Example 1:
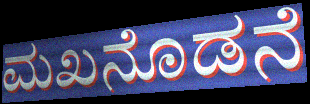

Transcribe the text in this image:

ಮಖನೊಡನೆ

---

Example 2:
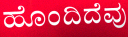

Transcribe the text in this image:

ಹೊಂದಿದೆವು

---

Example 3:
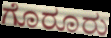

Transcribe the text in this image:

ಗೊರೂರು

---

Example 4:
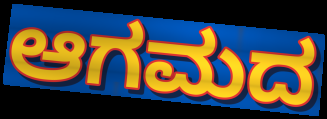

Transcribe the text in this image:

ಆಗಮದ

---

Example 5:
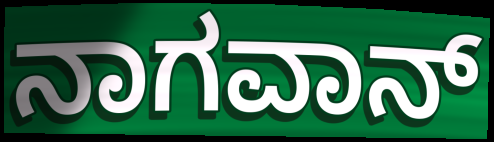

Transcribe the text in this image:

ನಾಗವಾನ್